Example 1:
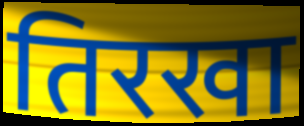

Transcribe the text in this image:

तिरखा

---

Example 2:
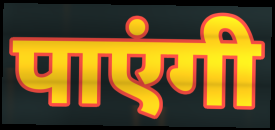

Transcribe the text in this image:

पाएंगी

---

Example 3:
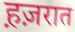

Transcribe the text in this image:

ह़ज़रात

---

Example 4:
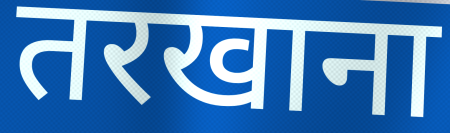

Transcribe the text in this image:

तरखाना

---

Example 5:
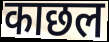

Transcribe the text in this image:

काछल